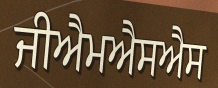
ਜੀਐਮਐਸਐਸ